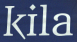
kila